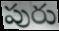
పురు